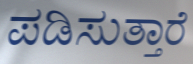
ಪಡಿಸುತ್ತಾರೆ